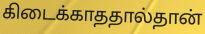
கிடைக்காததால்தான்